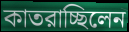
কাতরাচ্ছিলেন